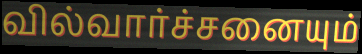
வில்வார்ச்சனையும்